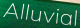
Alluvial